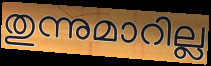
തുന്നുമാറില്ല